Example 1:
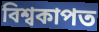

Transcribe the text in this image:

বিশ্বকাপত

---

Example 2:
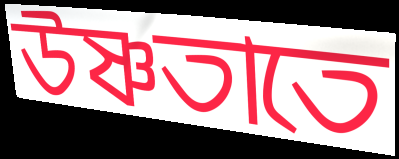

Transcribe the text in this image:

উষ্ণতাতে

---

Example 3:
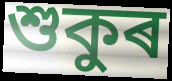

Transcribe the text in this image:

শুকুৰ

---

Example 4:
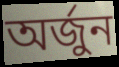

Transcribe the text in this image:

অৰ্জুন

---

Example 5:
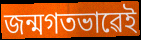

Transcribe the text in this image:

জন্মগতভাৱেই